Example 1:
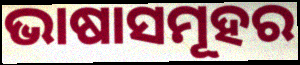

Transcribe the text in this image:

ଭାଷାସମୂହର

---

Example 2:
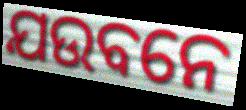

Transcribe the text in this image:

ଯଉବନେ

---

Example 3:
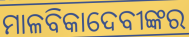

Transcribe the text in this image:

ମାଳବିକାଦେବୀଙ୍କର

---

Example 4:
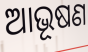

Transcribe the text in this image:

ଆଭୂଷଣ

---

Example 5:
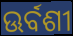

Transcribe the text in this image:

ଊର୍ବଶୀ